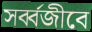
সর্ব্বজীবে